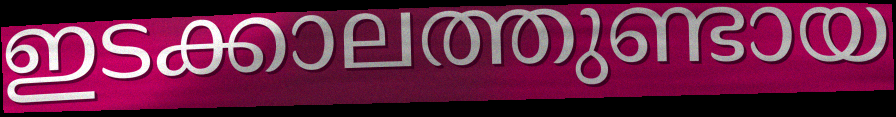
ഇടക്കാലത്തുണ്ടായ